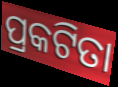
ପ୍ରକଟିତା